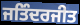
ਜਤਿੰਦਰਜੀਤ